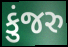
કુંજરુ